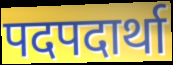
पदपदार्था